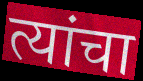
त्यांचा